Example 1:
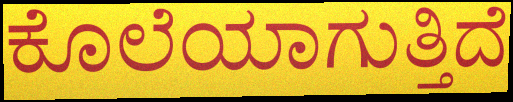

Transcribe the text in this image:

ಕೊಲೆಯಾಗುತ್ತಿದೆ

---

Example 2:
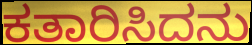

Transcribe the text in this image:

ಕತಾರಿಸಿದನು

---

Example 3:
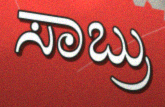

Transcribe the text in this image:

ಸಾಬ್ರು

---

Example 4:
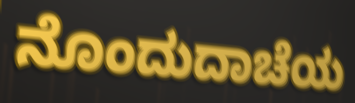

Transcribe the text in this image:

ನೊಂದುದಾಚೆಯ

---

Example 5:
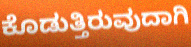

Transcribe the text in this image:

ಕೊಡುತ್ತಿರುವುದಾಗಿ